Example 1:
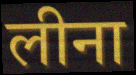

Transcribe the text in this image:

लीना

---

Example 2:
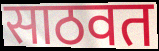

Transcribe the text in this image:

साठवत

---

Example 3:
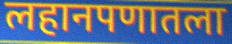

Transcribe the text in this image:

लहानपणातला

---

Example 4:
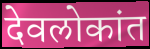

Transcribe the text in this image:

देवलोकांत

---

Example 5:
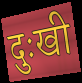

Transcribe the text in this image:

दुःखी